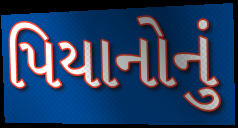
પિયાનોનું